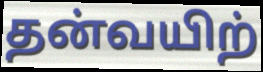
தன்வயிற்